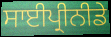
ਸਾਈਪ੍ਰੀਨੀਡੇ